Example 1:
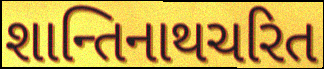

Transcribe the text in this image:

શાન્તિનાથચરિત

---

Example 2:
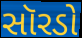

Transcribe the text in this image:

સૉરડો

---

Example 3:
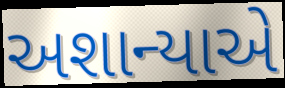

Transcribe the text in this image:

અશાન્યાએ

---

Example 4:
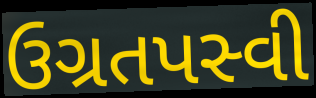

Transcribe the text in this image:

ઉગ્રતપસ્વી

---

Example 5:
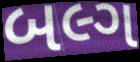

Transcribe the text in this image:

બલ્ગ